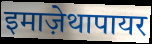
इमाज़ेथापायर